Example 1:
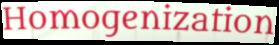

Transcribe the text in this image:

Homogenization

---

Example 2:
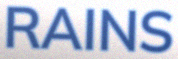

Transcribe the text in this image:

RAINS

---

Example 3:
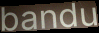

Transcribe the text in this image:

bandu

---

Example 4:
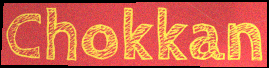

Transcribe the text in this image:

Chokkan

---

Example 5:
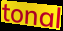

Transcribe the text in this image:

tonal